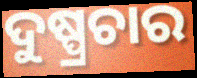
ଦୁଷ୍ପ୍ରଚାର